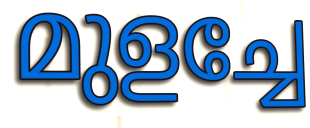
മുളച്ചേ